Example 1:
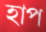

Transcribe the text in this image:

হাপ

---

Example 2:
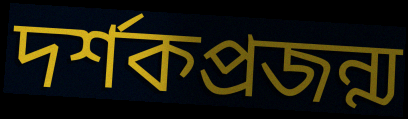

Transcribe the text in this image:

দর্শকপ্রজন্ম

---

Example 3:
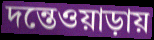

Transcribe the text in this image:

দন্তেওয়াড়ায়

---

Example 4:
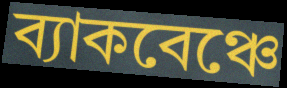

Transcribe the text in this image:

ব্যাকবেঞ্চে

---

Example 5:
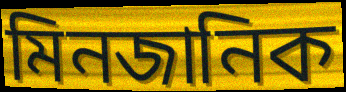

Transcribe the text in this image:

মিনজানিক